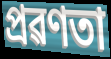
প্ৰৱণতা